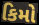
કિમો